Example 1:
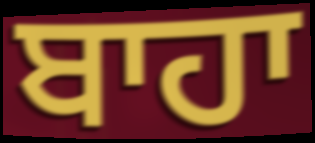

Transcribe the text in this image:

ਬਾਹਾ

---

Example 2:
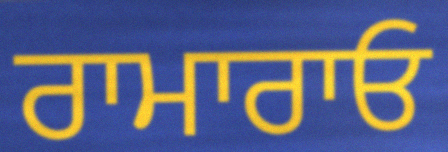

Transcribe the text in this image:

ਰਾਮਾਰਾਓ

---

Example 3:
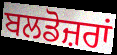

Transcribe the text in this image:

ਬਲਡੋਜ਼ਰਾਂ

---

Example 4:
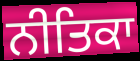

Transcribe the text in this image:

ਨੀਤਿਕਾ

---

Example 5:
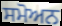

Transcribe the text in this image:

ਸਮੋਅਨ